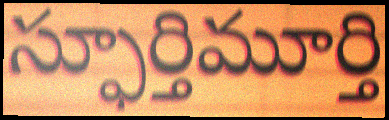
స్ఫూర్తిమూర్తి